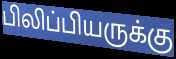
பிலிப்பியருக்கு